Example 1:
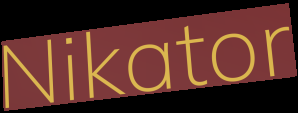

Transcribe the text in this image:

Nikator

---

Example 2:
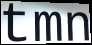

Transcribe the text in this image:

tmn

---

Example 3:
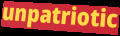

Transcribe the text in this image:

unpatriotic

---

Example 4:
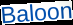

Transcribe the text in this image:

Baloon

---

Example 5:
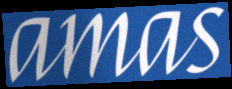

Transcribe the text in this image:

amas